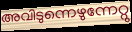
അവിടുന്നെഴുന്നേറ്റു